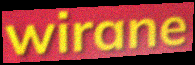
wirane